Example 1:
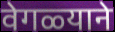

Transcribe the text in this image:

वेगळ्याने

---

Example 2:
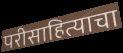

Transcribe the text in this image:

परीसाहित्याचा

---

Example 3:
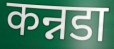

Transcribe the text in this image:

कन्नडा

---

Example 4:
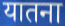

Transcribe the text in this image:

यातना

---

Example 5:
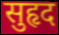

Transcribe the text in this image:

सुहृद